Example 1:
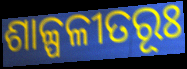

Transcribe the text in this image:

ଶାଳ୍ପଳୀତରୂଃ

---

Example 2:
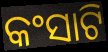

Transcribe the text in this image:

କଂସାଟି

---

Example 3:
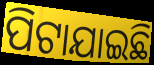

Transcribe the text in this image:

ପିଟାଯାଇଛି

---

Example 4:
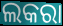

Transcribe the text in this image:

ଲକରା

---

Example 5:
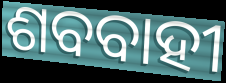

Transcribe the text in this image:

ଶବବାହୀ